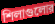
শিলাগুলোর